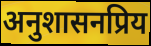
अनुशासनप्रिय